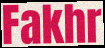
Fakhr